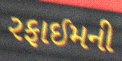
રફાઈમની